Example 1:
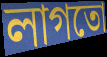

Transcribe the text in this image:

লাগতো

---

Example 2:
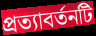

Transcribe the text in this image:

প্রত্যাবর্তনটি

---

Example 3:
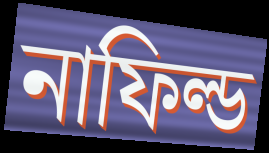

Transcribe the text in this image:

নাফিল্ড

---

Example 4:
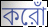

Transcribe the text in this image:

করোঁ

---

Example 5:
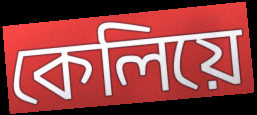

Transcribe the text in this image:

কেলিয়ে